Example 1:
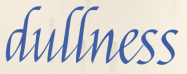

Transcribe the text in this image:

dullness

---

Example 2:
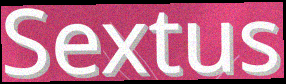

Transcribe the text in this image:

Sextus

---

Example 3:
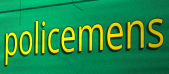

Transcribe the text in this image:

policemens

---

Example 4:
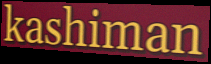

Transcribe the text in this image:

kashiman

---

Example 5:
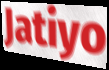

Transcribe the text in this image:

Jatiyo